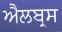
ਐਲਬ੍ਰਸ